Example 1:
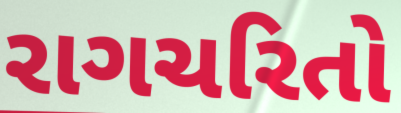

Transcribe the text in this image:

રાગચરિતો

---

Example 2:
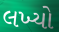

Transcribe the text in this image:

લખ્યો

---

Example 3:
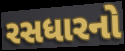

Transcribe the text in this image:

રસધારનો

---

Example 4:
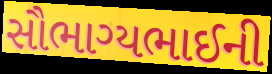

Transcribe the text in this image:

સૌભાગ્યભાઈની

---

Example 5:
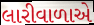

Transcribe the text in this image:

લારીવાળાએ